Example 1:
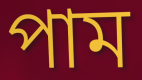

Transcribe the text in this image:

পাম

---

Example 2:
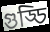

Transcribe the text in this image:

গুড্ডি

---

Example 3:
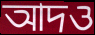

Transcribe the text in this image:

আদও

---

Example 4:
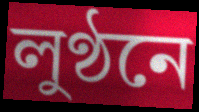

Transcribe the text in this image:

লুণ্ঠনে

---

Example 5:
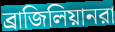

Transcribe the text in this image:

ব্রাজিলিয়ানরা